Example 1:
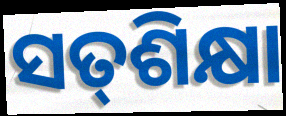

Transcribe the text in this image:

ସତ୍‌ଶିକ୍ଷା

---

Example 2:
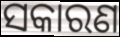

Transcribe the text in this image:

ସକାରଣ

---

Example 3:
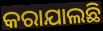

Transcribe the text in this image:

କରାଯାଲଛି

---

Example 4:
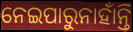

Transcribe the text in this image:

ନେଇପାରୁନାହାଁନ୍ତି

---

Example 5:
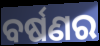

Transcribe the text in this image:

ବର୍ଷଣର